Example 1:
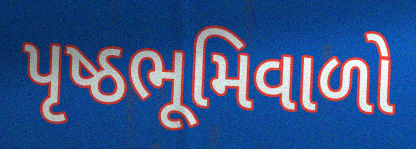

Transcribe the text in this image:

પૃષ્ઠભૂમિવાળો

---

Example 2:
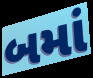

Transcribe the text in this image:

બમાં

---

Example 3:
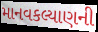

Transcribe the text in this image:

માનવકલ્યાણની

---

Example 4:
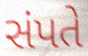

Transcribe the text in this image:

સંપતે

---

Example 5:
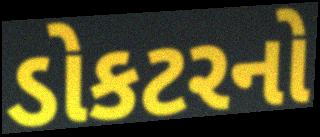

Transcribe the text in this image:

ડોકટરનો